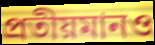
প্রতীয়মানও